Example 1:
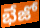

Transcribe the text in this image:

భేజో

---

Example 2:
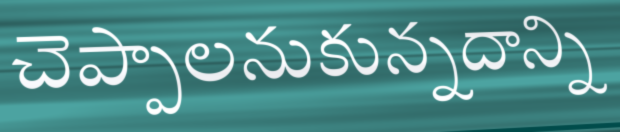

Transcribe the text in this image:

చెప్పాలనుకున్నదాన్ని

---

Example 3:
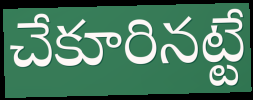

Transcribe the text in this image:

చేకూరినట్టే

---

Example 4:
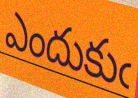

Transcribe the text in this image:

ఎందుకుఁ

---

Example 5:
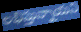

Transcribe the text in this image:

లభిస్తున్నాయని